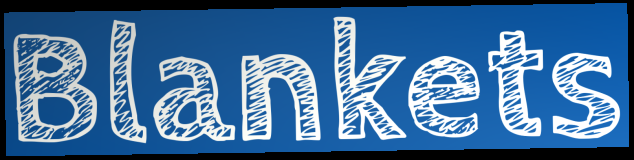
Blankets